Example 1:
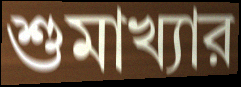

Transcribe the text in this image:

শুমাখ্যার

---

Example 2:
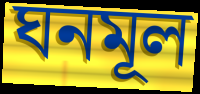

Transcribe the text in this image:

ঘনমূল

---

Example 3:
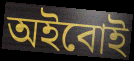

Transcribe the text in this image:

অইবোই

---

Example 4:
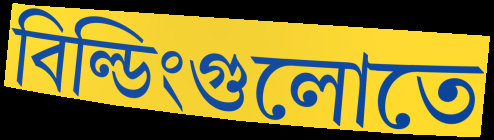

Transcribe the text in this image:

বিল্ডিংগুলোতে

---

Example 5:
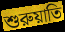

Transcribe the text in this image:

শুরুয়াতি